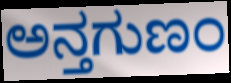
ಅನ್ತಗುಣಂ